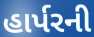
હાર્પરની